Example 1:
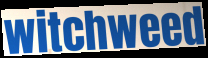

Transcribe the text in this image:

witchweed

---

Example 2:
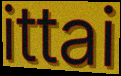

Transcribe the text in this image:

ittai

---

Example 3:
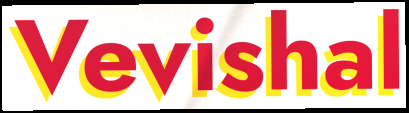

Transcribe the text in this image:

Vevishal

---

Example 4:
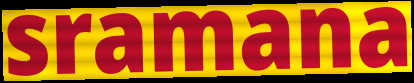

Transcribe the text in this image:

sramana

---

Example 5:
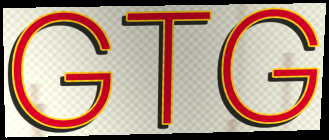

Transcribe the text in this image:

GTG